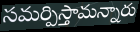
సమర్పిస్తామన్నారు